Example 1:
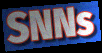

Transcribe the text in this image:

SNNs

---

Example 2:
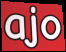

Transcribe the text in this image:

ajo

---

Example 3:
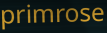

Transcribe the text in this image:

primrose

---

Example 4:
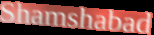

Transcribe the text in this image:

Shamshabad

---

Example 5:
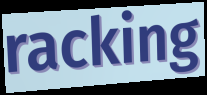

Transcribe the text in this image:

racking